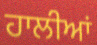
ਹਾਲੀਆਂ